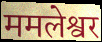
ममलेश्वर